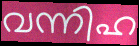
വന്നിഹ